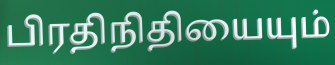
பிரதிநிதியையும்